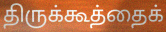
திருக்கூத்தைக்